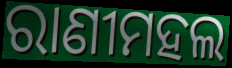
ରାଣୀମହଲ